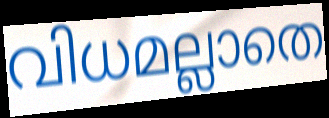
വിധമല്ലാതെ